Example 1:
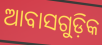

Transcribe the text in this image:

ଆବାସଗୁଡ଼ିକ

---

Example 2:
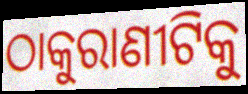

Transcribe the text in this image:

ଠାକୁରାଣୀଟିକୁ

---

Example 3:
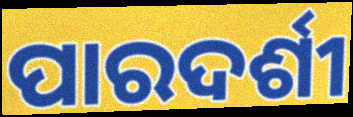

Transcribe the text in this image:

ପାରଦର୍ଶୀ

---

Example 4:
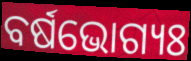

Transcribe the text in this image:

ବର୍ଷଭୋଗ୍ୟଃ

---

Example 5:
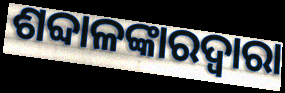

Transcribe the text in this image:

ଶବ୍ଦାଳଙ୍କାରଦ୍ୱାରା